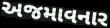
અજમાવનાર